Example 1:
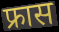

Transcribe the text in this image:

फ्रास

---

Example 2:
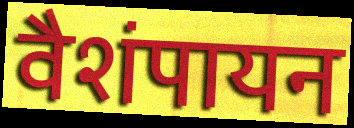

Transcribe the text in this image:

वैशंपायन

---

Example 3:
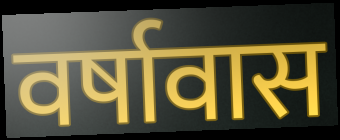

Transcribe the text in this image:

वर्षावास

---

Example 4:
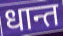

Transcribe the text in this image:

धान्त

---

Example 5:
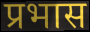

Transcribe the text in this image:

प्रभास